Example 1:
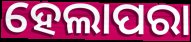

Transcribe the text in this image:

ହେଲାପରା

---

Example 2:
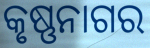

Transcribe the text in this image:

କୃଷ୍ଣନାଗର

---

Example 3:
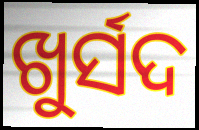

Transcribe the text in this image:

ଖୁର୍ସଦ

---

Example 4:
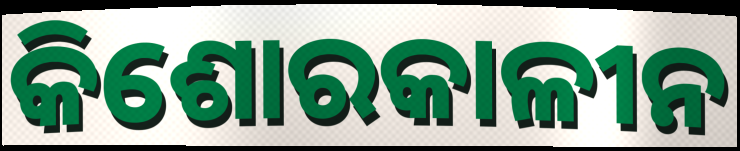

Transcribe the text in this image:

କିଶୋରକାଳୀନ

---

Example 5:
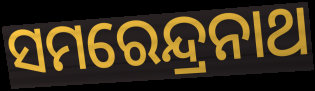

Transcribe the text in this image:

ସମରେନ୍ଦ୍ରନାଥ